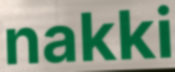
nakki